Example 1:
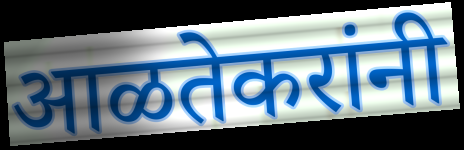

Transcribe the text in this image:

आळतेकरांनी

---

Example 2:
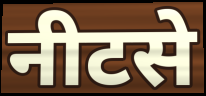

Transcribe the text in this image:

नीटसे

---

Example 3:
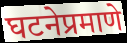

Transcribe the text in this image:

घटनेप्रमाणे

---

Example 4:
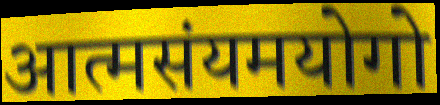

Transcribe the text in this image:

आत्मसंयमयोगो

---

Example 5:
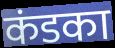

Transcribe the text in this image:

कंडका